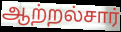
ஆற்றல்சார்